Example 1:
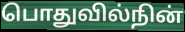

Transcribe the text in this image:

பொதுவில்நின்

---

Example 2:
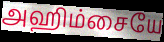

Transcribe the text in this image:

அஹிம்சையே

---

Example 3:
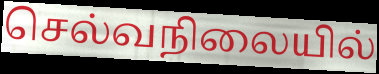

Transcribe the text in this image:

செல்வநிலையில்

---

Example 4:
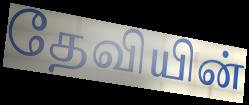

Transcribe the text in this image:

தேவியின்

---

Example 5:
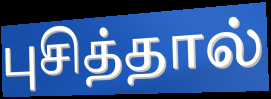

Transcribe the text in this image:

புசித்தால்